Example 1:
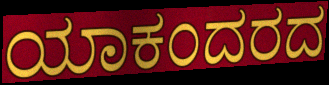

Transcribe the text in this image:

ಯಾಕಂದರದ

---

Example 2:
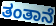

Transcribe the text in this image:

ತಂತಾನೆ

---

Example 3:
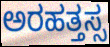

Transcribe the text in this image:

ಅರಹತ್ತಸ್ಸ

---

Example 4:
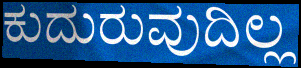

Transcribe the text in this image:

ಕುದುರುವುದಿಲ್ಲ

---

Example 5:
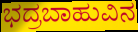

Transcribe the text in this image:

ಭದ್ರಬಾಹುವಿನ